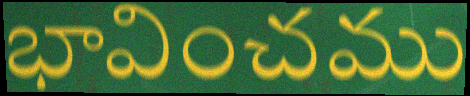
భావించము